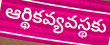
ఆర్థికవ్యవస్థకు